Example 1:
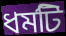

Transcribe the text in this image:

ধর্মটি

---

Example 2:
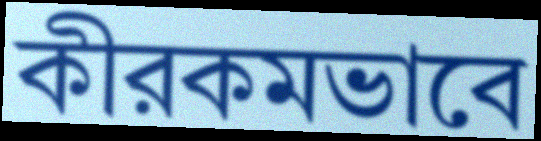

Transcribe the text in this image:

কীরকমভাবে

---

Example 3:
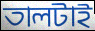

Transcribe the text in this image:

তালটাই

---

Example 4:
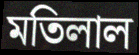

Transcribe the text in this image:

মতিলাল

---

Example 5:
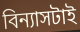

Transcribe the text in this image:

বিন্যাসটাই